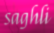
saghli